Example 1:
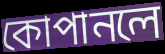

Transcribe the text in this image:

কোপানলে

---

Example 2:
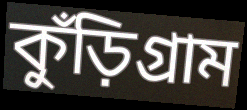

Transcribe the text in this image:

কুঁড়িগ্রাম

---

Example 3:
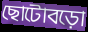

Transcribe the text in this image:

ছোটোবড়ো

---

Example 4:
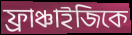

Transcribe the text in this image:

ফ্রাঞ্চাইজিকে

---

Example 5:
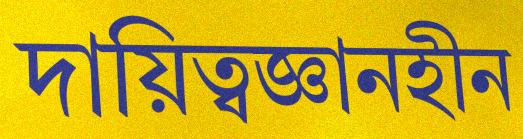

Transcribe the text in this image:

দায়িত্বজ্ঞানহীন